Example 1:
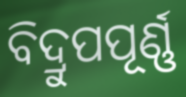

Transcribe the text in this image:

ବିଦ୍ରୁପପୂର୍ଣ୍ଣ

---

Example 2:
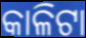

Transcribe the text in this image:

କାଳିଟା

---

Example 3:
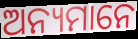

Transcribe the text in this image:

ଅନ୍ଯମାନେ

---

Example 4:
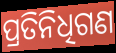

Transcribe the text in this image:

ପ୍ରତିନିଧିଗଣ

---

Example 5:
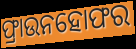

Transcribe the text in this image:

ଫ୍ରାଉନହୋଫର